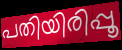
പതിയിരിപ്പൂ